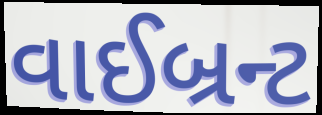
વાઈબ્રન્ટ